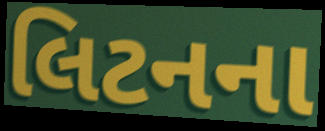
લિટનના